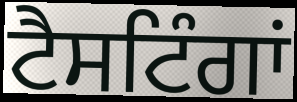
ਟੈਸਟਿੰਗਾਂ